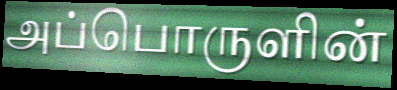
அப்பொருளின்